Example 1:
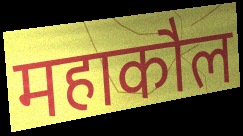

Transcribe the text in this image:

महाकौल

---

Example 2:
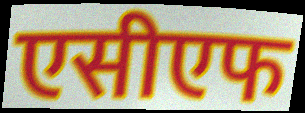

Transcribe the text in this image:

एसीएफ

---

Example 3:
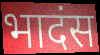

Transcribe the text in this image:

भादंस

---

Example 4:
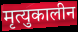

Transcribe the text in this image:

मृत्युकालीन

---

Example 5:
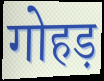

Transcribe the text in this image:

गोहड़